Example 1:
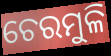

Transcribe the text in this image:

ଚେରମୁଳି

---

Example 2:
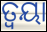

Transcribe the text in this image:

ତ୍ୱୟା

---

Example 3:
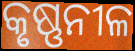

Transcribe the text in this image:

କୃଷ୍ଣନୀଳ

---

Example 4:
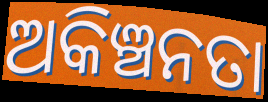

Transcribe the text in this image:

ଅକିଞ୍ଚନତା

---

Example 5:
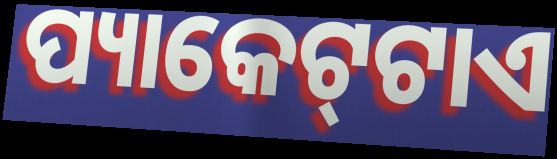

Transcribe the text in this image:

ପ୍ୟାକେଟ୍‌ଟାଏ